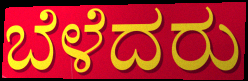
ಬೆಳೆದರು